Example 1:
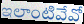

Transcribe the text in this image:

ఇలాంటివేవో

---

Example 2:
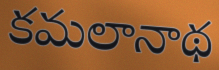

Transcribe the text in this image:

కమలానాథ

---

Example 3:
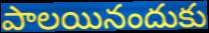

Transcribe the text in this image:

పాలయినందుకు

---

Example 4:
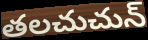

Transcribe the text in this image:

తలచుచున్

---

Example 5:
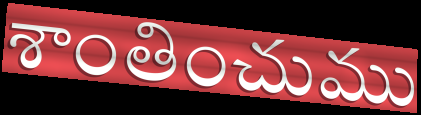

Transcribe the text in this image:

శాంతించుము